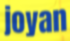
joyan